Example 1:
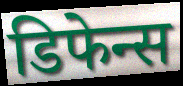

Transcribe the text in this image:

डिफेन्स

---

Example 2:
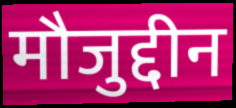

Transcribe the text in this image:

मौजुद्दीन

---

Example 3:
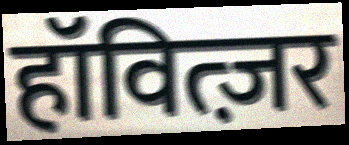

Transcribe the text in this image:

हॉवित्ज़र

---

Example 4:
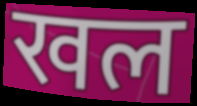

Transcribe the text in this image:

खल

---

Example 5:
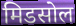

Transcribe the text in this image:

मिडसोल